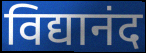
विद्यानंद